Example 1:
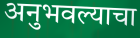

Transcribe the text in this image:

अनुभवल्याचा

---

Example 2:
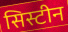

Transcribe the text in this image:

सिस्टीन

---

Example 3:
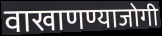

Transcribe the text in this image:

वाखाणण्याजोगी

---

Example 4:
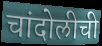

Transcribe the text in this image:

चांदोलीची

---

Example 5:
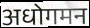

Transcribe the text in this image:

अधोगमन